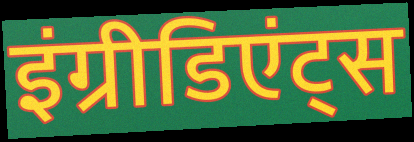
इंग्रीडिएंट्स